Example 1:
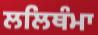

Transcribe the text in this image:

ਲਲਿਥੰਮਾ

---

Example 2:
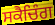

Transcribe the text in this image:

ਸਕੈਚਿੰਗ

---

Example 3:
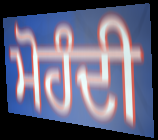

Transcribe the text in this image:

ਮੋਹੰਦੀ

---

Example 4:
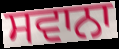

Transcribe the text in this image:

ਸਵਾਨਾ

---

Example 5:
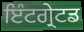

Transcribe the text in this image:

ਇੰਟਗ੍ਰੇਟਡ